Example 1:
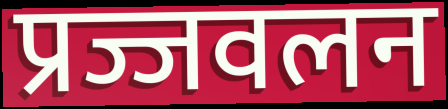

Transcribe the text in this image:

प्रज्जवलन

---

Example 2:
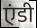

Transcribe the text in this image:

एंडी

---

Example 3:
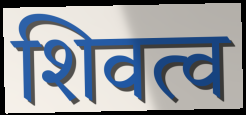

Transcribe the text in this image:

शिवत्व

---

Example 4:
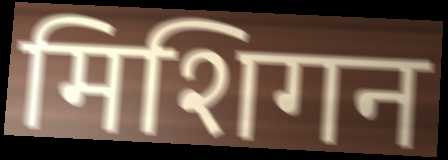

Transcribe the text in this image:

मिशिगन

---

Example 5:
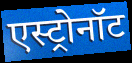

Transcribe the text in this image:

एस्‍ट्रोनॉट